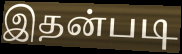
இதன்படி